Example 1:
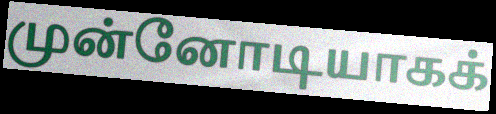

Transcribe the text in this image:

முன்னோடியாகக்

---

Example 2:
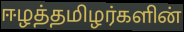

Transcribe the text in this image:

ஈழத்தமிழர்களின்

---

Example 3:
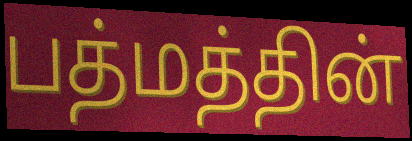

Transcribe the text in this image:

பத்மத்தின்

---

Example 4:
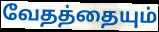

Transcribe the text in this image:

வேதத்தையும்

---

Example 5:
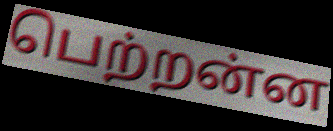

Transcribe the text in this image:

பெற்றன்ன